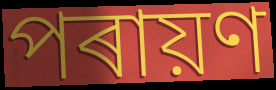
পৰায়ণ